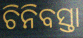
ଚିନିବସ୍ତା